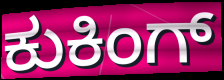
ಕುಕಿಂಗ್